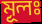
মূলঃ